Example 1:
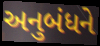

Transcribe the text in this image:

અનુબંધને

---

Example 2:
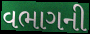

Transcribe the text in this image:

વભાગની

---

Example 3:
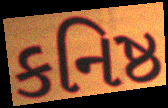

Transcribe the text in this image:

કનિષ્ઠ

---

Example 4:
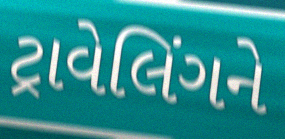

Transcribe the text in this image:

ટ્રાવેલિંગને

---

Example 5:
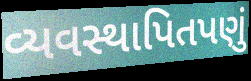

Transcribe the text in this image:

વ્યવસ્થાપિતપણું